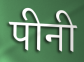
पीनी